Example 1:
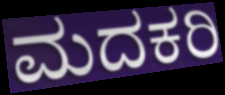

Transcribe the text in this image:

ಮದಕರಿ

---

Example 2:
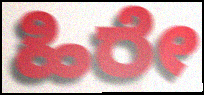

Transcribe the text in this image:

ಹಿರೇ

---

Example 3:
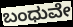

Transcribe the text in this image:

ಬಂಧುವೇ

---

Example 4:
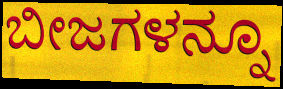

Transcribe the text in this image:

ಬೀಜಗಳನ್ನೂ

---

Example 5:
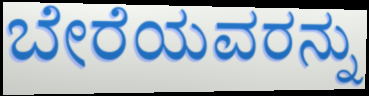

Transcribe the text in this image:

ಬೇರೆಯವರನ್ನು